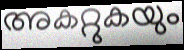
അകറ്റുകയും